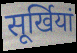
सूर्खियां